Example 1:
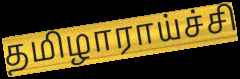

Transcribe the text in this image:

தமிழாராய்ச்சி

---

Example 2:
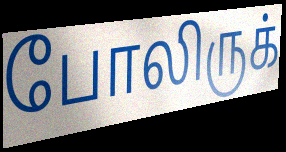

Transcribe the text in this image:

போலிருக்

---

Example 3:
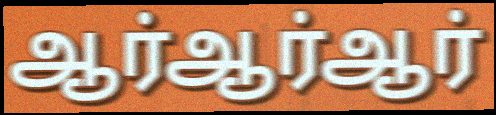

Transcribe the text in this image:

ஆர்ஆர்ஆர்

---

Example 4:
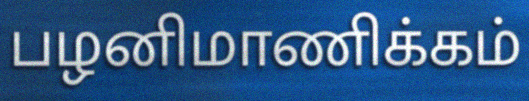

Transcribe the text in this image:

பழனிமாணிக்கம்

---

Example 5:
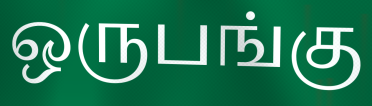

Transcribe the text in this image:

ஒருபங்கு